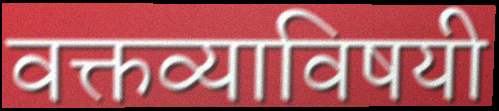
वक्तव्याविषयी